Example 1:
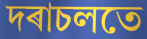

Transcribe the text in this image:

দৰাচলতে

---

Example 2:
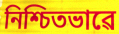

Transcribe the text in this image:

নিশ্চিতভাৱে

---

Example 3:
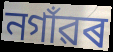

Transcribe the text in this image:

নগাঁৱৰ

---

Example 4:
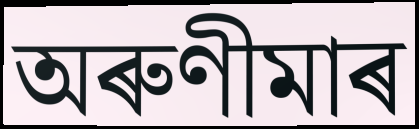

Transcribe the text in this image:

অৰুণীমাৰ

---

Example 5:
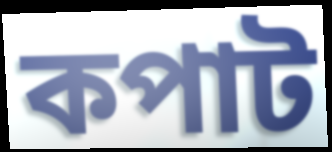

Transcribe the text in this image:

কপাট